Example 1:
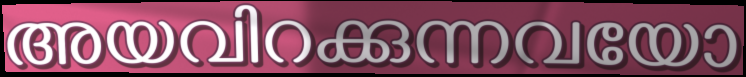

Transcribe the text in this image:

അയവിറക്കുന്നവയോ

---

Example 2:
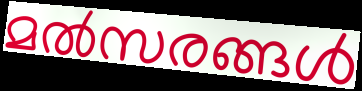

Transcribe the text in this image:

മൽസരങ്ങൾ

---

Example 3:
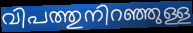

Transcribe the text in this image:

വിപത്തുനിറഞ്ഞുള്ള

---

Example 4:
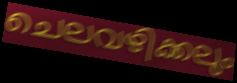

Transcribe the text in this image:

ചെലവഴിക്കലും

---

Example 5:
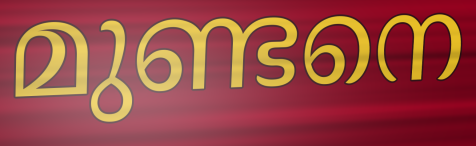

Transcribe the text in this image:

മുണ്ടനെ